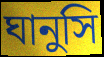
ঘানুসি